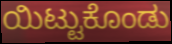
ಯಿಟ್ಟುಕೊಂಡು